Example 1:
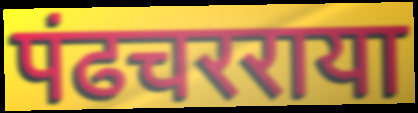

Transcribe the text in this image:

पंढचरराया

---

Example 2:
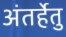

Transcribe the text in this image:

अंतर्हेतु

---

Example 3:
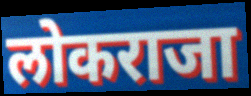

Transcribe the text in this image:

लोकराजा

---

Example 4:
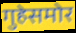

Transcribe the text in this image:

गुहेसमोर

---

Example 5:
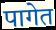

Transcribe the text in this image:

पागेत